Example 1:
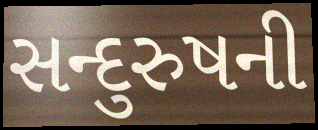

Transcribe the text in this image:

સન્દુરુષની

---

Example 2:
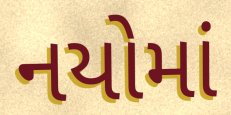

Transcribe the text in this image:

નયોમાં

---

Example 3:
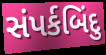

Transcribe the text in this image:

સંપર્કબિંદુ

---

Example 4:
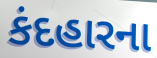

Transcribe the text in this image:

કંદહારના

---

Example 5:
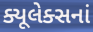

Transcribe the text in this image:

ક્યૂલેક્સનાં